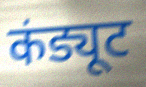
कंड्यूट